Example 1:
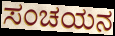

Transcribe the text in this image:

ಸಂಚಯನ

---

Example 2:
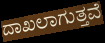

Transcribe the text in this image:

ದಾಖಲಾಗುತ್ತವೆ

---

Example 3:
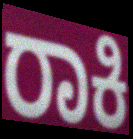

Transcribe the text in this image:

ರಾಕಿ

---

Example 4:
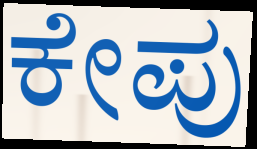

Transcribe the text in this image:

ಕೇಪು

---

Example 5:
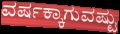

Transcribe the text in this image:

ವರ್ಷಕ್ಕಾಗುವಷ್ಟು